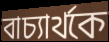
বাচ্যার্থকে